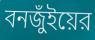
বনজুঁইয়ের